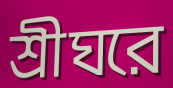
শ্রীঘরে